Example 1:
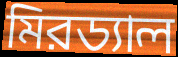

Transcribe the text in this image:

মিরড্যাল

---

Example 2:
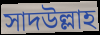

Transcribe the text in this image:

সাদউল্লাহ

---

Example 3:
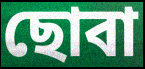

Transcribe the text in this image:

ছোবা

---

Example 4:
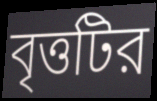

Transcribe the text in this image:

বৃত্তটির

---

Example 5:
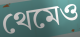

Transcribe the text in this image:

থেমেও